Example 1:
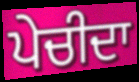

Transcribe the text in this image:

ਪੇਚੀਦਾ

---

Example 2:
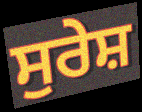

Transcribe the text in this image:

ਸੁਰੇਸ਼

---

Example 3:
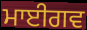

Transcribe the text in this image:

ਮਾਈਗਵ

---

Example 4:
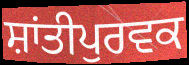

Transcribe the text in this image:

ਸ਼ਾਂਤੀਪੁਰਵਕ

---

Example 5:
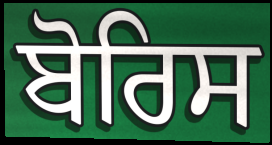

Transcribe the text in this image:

ਬੋਰਿਸ